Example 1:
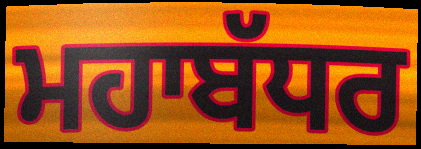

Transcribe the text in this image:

ਮਹਾਬੱਧਰ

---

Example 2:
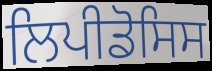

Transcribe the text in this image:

ਲਿਪੀਡੋਸਿਸ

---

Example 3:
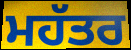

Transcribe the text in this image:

ਮਹੱਤਰ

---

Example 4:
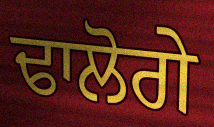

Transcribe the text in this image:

ਢਾਲੋਗੇ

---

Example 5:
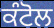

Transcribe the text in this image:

ਕੰਟੋਲ